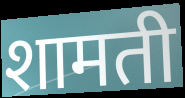
शामती